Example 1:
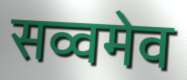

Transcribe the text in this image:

सव्वमेव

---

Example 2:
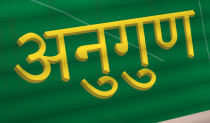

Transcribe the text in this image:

अनुगुण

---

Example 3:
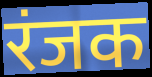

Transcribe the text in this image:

रंजक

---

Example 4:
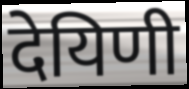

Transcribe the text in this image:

देयिणी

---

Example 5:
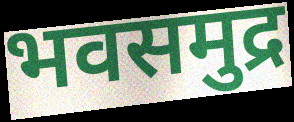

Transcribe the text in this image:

भवसमुद्र